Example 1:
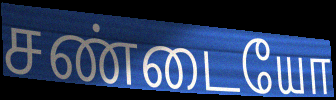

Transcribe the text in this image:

சண்டையோ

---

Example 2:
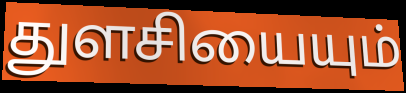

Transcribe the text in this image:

துளசியையும்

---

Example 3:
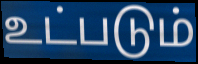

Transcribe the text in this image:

உட்படும்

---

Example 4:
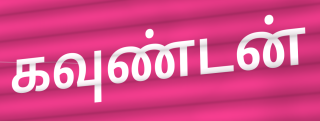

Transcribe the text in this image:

கவுண்டன்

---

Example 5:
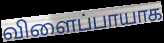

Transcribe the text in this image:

விளைப்பாயாக